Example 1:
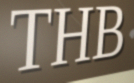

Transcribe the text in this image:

THB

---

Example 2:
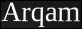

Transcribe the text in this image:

Arqam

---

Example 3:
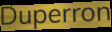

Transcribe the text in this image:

Duperron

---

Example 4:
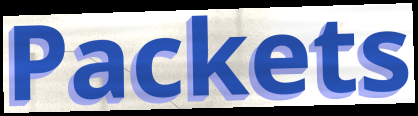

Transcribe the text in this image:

Packets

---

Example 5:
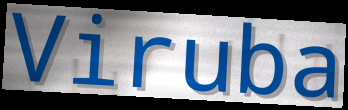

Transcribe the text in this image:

Viruba